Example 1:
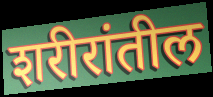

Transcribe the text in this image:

शरीरांतील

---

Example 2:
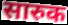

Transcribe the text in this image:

सारुक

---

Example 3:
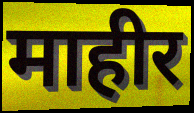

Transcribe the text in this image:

माहीर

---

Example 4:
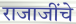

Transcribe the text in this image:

राजाजींचे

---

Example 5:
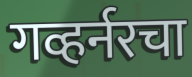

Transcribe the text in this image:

गव्हर्नरचा